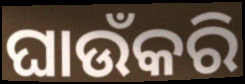
ଘାଉଁକରି